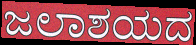
ಜಲಾಶಯದ